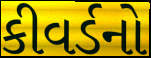
કીવર્ડનો